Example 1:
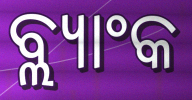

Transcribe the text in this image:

ବ୍ଲ୍ଯାଂକ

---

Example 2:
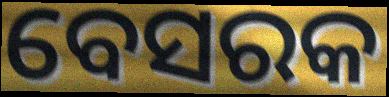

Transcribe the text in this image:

ବେସରକ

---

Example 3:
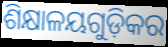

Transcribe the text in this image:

ଶିକ୍ଷାଳୟଗୁଡ଼ିକର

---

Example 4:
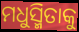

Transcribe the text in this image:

ମଧୁସ୍ମିତାକୁ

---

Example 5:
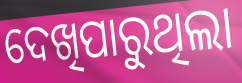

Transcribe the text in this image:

ଦେଖିପାରୁଥିଲା